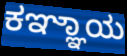
ಕಞ್ಞಾಯ